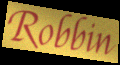
Robbin